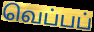
வெப்பப்